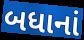
બધાનાં